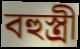
বহুস্ত্ৰী